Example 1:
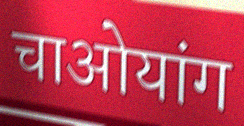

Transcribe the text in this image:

चाओयांग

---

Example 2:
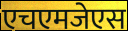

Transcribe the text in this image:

एचएमजेएस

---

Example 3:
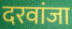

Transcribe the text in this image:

दरवांजा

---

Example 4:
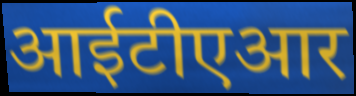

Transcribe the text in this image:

आईटीएआर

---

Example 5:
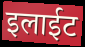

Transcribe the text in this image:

इलाईट